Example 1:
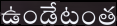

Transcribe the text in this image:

ఉండేటంత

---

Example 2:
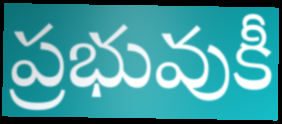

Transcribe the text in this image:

ప్రభువుకీ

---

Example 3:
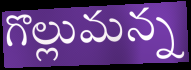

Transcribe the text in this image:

గొల్లుమన్న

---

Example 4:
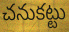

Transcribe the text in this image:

చనుకట్టు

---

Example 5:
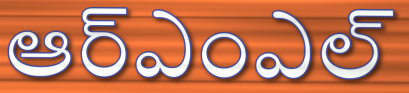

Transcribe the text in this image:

ఆర్ఎంఎల్